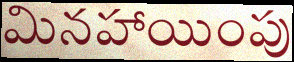
మినహాయింపు